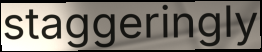
staggeringly